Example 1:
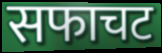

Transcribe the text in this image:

सफाचट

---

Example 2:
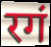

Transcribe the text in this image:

रगं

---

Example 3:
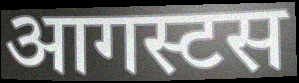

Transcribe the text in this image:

आगस्टस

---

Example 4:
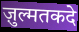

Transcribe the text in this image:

ज़ुल्मतकदे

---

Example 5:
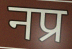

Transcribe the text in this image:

नप्र